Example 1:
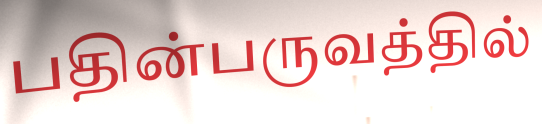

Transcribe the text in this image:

பதின்பருவத்தில்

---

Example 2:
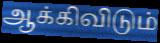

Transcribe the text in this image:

ஆக்கிவிடும்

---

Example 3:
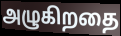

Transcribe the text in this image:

அழுகிறதை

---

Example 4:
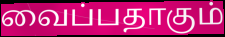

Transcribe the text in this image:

வைப்பதாகும்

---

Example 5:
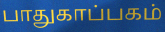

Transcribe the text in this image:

பாதுகாப்பகம்